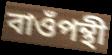
বাওঁপন্থী